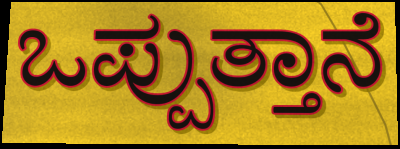
ಒಪ್ಪುತ್ತಾನೆ